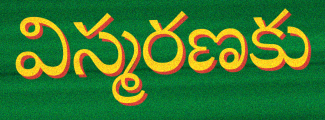
విస్మరణకు